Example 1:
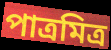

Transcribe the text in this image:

পাত্রমিত্র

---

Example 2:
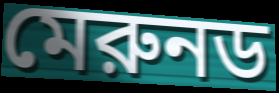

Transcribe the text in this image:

মেরুনড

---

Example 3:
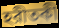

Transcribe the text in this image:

হরীতকী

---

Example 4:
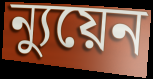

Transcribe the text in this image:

ন্যুয়েন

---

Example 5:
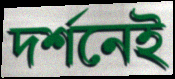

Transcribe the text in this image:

দর্শনেই